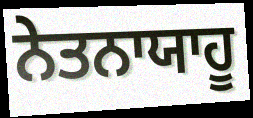
ਨੇਤਨਾਯਾਹੂ